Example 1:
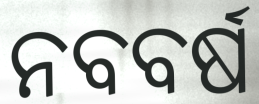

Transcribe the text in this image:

ନବବର୍ଷ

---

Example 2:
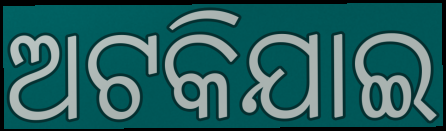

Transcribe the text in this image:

ଅଟକିଯାଇ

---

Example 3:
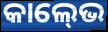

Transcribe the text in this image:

କାଲ୍‍ଭେ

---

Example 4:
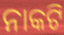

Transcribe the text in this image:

ନାକଟି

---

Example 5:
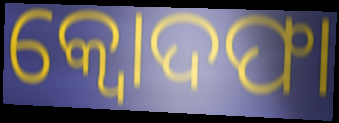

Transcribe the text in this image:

କ୍ବୋଦଫା